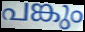
പങ്കും